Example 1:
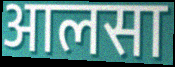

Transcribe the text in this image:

आलसा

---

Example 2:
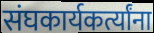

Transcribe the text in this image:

संघकार्यकर्त्यांना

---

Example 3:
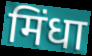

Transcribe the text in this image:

मिंधा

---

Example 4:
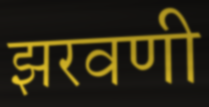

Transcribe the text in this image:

झरवणी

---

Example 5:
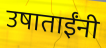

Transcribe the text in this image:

उषाताईंनी